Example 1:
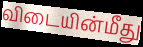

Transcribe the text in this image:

விடையின்மீது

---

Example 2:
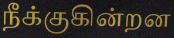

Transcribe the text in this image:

நீக்குகின்றன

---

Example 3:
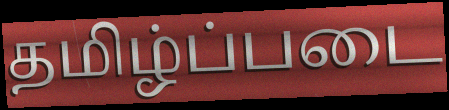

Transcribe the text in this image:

தமிழ்ப்படை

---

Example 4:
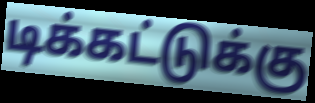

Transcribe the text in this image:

டிக்கட்டுக்கு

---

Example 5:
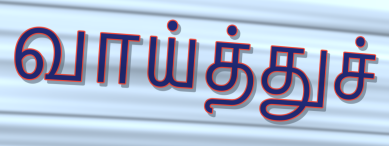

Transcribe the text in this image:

வாய்த்துச்